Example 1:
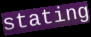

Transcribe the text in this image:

stating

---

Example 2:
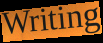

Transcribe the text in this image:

Writing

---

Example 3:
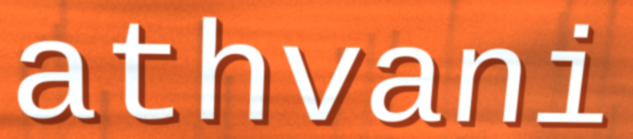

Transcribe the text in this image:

athvani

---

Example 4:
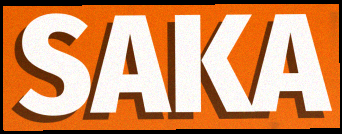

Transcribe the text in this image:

SAKA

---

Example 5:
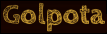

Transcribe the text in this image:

Golpota